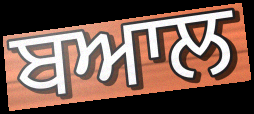
ਬਆਲ